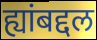
ह्यांबद्दल